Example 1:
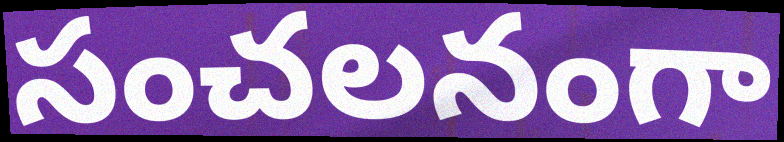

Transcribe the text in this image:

సంచలనంగా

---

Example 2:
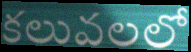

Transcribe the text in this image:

కలువలలో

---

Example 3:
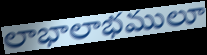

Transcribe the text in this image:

లాభాలాభములూ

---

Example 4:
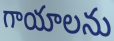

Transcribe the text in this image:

గాయాలను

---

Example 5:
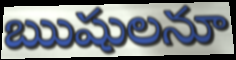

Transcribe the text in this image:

ఋషులనూ